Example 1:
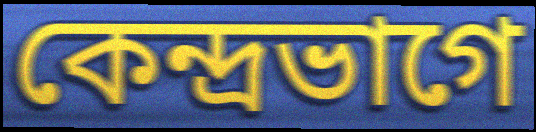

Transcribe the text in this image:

কেন্দ্রভাগে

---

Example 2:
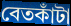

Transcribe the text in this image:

বেতকাঁটা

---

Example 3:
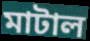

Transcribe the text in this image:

মাটাল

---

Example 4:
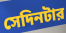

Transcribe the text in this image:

সেদিনটার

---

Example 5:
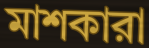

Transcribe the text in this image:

মাশকারা